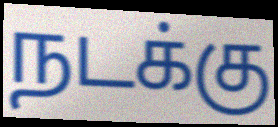
நடக்கு